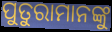
ପୁତୁରାମାନଙ୍କୁ